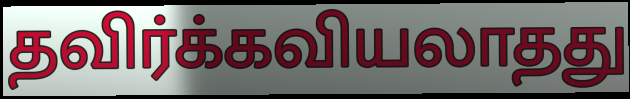
தவிர்க்கவியலாதது